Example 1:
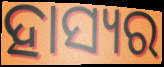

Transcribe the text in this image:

ହାସ୍ୟର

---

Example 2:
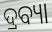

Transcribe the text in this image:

ଦ୍ରବ୍ୟା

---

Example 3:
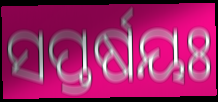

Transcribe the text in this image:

ସପ୍ତର୍ଷୟଃ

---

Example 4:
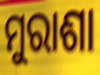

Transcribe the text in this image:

ମୁରାଶା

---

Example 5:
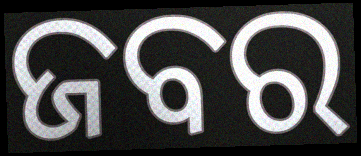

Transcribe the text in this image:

ଜବର